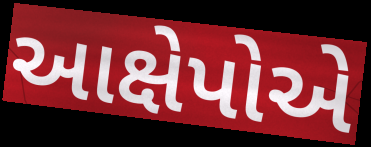
આક્ષેપોએ